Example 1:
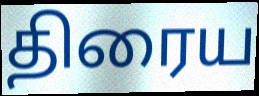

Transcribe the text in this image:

திரைய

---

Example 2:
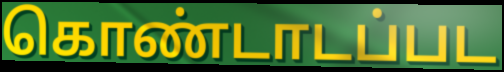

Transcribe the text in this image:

கொண்டாடப்பட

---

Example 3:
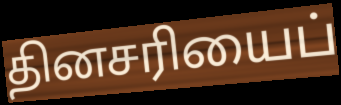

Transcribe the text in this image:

தினசரியைப்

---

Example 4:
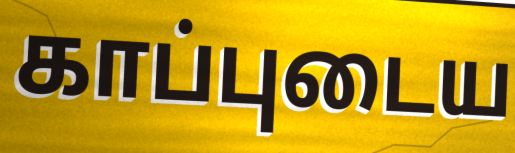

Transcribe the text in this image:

காப்புடைய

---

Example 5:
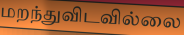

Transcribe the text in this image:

மறந்துவிடவில்லை